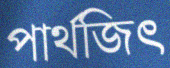
পার্থজিৎ